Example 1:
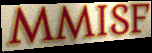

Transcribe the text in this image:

MMISF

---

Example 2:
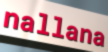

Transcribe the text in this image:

nallana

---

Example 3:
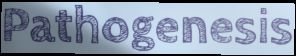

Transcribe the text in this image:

Pathogenesis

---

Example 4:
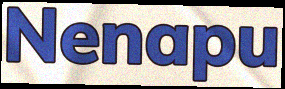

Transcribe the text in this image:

Nenapu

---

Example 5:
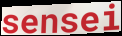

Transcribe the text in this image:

sensei